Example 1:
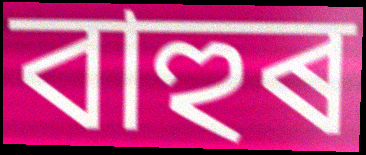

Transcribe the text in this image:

বাহুৰ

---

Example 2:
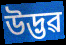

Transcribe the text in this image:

উদ্ভৱ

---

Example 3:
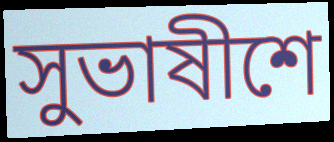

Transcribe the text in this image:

সুভাষীশে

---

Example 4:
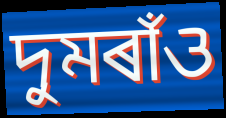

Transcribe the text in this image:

দুমৰাঁও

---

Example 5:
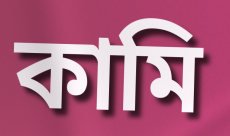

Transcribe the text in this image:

কামি